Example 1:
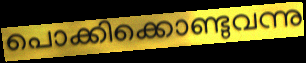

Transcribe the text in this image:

പൊക്കിക്കൊണ്ടുവന്നു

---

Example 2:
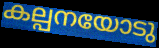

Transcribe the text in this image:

കല്പനയോടു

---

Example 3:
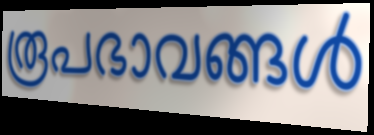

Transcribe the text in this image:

രൂപഭാവങ്ങൾ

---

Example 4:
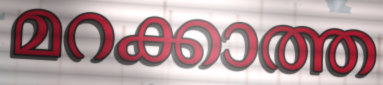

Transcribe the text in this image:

മറക്കാത്ത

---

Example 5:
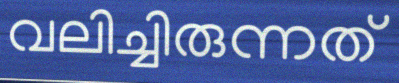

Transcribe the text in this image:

വലിച്ചിരുന്നത്